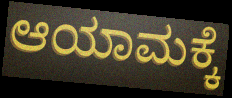
ಆಯಾಮಕ್ಕೆ